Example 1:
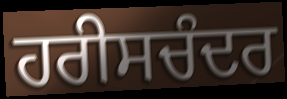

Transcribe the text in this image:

ਹਰੀਸਚੰਦਰ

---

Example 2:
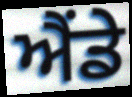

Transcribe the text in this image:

ਐਂਡੇ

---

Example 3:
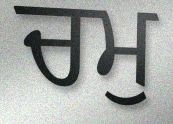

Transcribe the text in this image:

ਚਮੁ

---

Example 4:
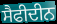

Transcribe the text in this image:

ਸੈਫੀਦੀਨ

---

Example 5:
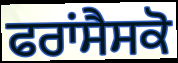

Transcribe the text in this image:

ਫਰਾਂਸੈਸਕੋ